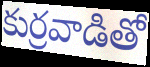
కుర్రవాడితో